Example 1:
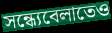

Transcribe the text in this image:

সন্ধ্যেবেলাতেও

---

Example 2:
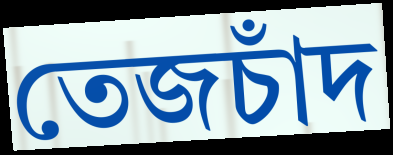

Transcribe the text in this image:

তেজচাঁদ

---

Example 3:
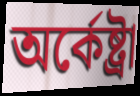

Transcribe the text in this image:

অর্কেষ্ট্রা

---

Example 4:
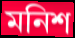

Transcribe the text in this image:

মনিশ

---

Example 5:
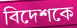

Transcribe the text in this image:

বিদেশকে